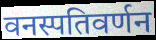
वनस्पतिवर्णन